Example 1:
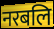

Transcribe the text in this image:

नरबलि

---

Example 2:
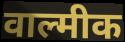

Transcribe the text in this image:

वाल्मीक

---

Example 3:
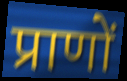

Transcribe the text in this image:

प्राणों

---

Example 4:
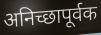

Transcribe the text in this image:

अनिच्छापूर्वक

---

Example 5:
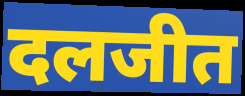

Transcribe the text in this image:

दलजीत